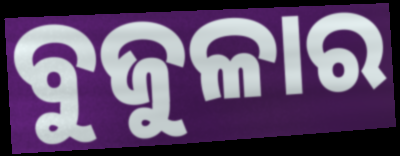
ବୁଜୁଳାର